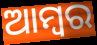
ଆମ୍ବର